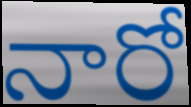
నారో